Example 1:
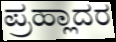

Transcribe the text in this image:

ಪ್ರಹ್ಲಾದರ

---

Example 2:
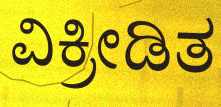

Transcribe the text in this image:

ವಿಕ್ರೀಡಿತ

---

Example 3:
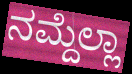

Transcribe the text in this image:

ನಮ್ದೆಲ್ಲಾ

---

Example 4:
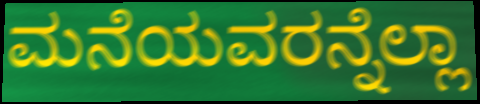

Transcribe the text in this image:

ಮನೆಯವರನ್ನೆಲ್ಲಾ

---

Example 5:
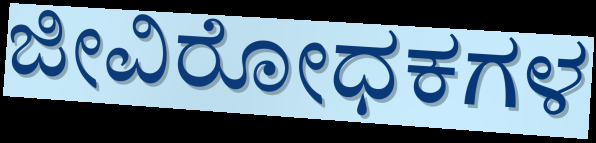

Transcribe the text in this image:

ಜೀವಿರೋಧಕಗಳ